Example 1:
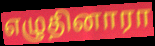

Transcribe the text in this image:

எழுதினாரா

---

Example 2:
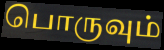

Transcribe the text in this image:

பொருவும்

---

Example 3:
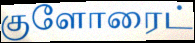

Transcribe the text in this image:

குளோரைட்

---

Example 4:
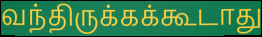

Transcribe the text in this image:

வந்திருக்கக்கூடாது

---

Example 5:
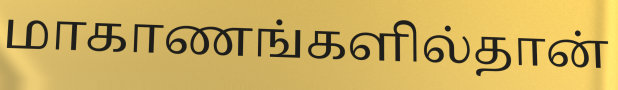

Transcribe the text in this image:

மாகாணங்களில்தான்